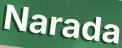
Narada